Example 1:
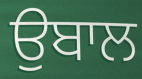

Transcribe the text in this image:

ਉਬਾਲ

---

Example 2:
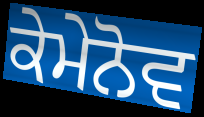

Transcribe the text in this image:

ਕੇਮੇਨੋਵ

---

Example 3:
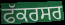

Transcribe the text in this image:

ਫੱਕਰਸਰ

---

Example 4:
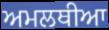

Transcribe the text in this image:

ਅਮਲਥੀਆ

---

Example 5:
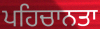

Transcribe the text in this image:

ਪਹਿਚਾਨਤਾ